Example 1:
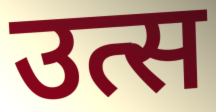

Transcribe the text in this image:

उत्स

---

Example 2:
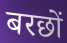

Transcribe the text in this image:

बरछों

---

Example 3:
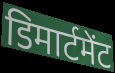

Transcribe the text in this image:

डिमार्टमेंट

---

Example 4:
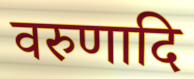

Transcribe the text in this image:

वरुणादि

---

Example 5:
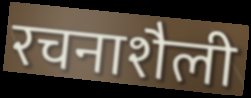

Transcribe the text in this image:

रचनाशैली